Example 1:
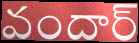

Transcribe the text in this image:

వందార్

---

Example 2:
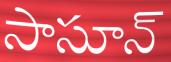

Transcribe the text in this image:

సాసూన్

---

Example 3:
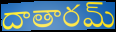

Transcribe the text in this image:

దాతారమ్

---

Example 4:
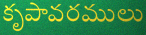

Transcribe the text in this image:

కృపావరములు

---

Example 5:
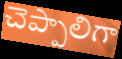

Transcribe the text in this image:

చెప్పాలిగా